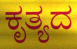
ಕೃತ್ಯದ